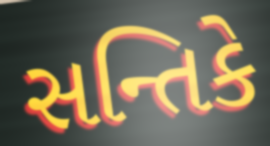
સન્તિકે